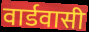
वार्डवासी